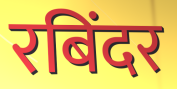
रबिंदर